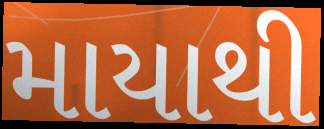
માયાથી